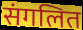
संगलित